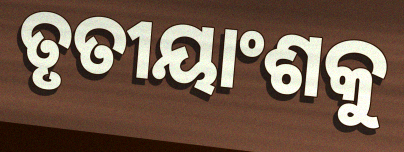
ତୃତୀୟାଂଶକୁ